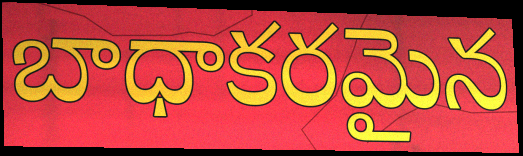
బాధాకరమైన